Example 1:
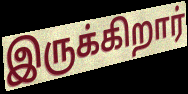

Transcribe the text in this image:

இருக்கிறார்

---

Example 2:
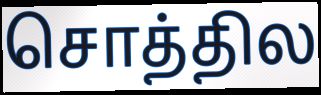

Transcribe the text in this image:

சொத்தில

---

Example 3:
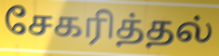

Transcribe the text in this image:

சேகரித்தல்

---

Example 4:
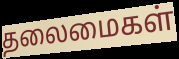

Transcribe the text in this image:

தலைமைகள்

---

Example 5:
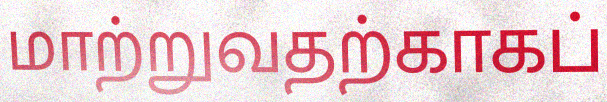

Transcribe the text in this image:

மாற்றுவதற்காகப்